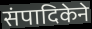
संपादिकेने